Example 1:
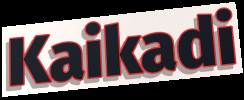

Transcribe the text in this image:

Kaikadi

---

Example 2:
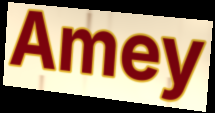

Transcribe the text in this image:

Amey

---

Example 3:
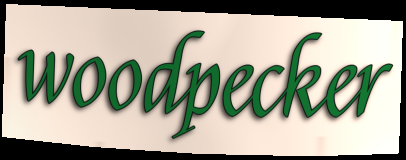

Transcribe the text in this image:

woodpecker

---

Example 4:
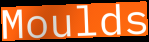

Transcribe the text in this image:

Moulds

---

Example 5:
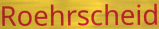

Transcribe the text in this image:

Roehrscheid